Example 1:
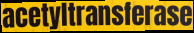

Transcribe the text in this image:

acetyltransferase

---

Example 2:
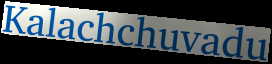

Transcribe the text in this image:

Kalachchuvadu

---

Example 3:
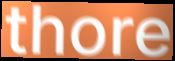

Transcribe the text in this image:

thore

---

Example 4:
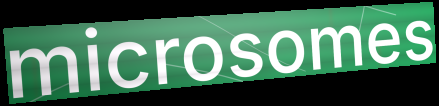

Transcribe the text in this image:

microsomes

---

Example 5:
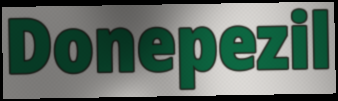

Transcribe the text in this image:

Donepezil